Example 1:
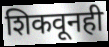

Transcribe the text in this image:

शिकवूनही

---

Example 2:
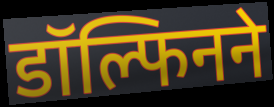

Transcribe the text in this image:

डॉल्फिनने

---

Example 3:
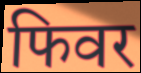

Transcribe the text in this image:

फिवर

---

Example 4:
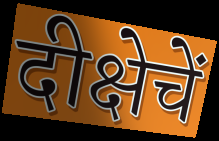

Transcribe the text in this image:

दीक्षेचें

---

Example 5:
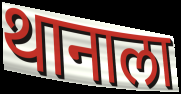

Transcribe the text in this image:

थानाला